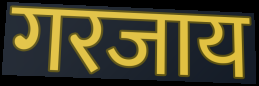
गरजाय